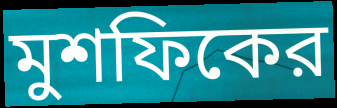
মুশফিকের